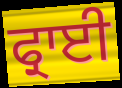
ਫ੍ਰਾਈ